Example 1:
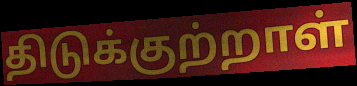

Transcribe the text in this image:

திடுக்குற்றாள்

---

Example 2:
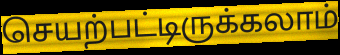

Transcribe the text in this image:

செயற்பட்டிருக்கலாம்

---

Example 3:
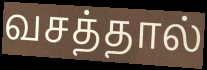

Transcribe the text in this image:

வசத்தால்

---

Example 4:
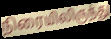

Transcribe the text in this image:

நிரையிலிருந்து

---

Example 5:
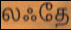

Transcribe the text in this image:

லஃதே